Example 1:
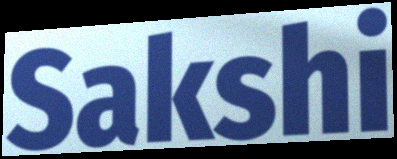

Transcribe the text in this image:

Sakshi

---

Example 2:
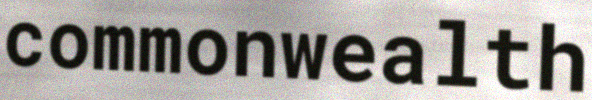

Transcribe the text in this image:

commonwealth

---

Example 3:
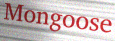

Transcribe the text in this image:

Mongoose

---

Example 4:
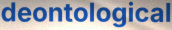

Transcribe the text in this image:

deontological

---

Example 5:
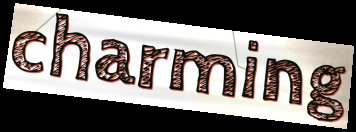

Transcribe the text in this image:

charming